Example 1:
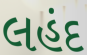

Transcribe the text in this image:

લહંદ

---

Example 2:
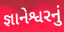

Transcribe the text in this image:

જ્ઞાનેશ્વરનું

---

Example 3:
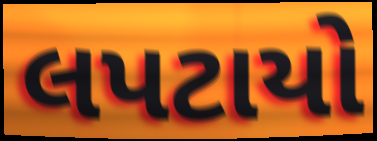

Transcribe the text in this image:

લપટાયો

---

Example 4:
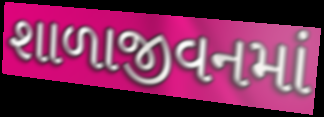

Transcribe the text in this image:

શાળાજીવનમાં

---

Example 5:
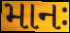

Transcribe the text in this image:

માનઃ